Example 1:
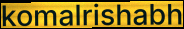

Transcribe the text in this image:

komalrishabh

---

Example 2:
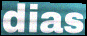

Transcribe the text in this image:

dias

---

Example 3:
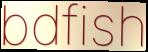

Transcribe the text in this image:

bdfish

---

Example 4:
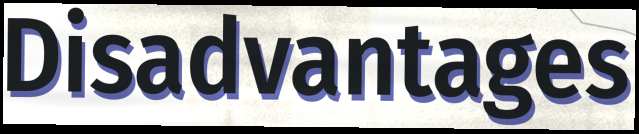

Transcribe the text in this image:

Disadvantages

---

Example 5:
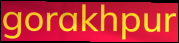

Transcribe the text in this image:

gorakhpur